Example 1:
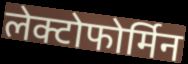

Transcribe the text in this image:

लेक्टोफोर्मिन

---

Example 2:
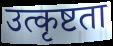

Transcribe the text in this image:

उत्कृष्टता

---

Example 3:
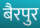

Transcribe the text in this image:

बैरपुर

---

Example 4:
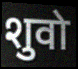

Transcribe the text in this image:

शुवो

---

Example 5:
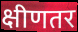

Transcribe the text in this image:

क्षीणतर